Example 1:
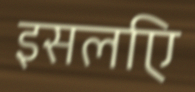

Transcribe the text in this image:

इसलएि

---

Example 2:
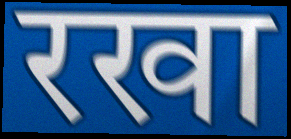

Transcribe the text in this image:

रखा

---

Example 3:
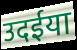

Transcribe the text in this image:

उदईया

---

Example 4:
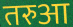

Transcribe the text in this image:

तरुआ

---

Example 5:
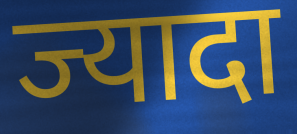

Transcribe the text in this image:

ज्‍यादा